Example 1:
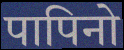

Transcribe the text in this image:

पापिनो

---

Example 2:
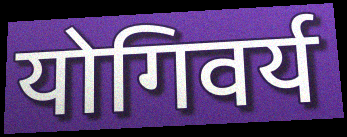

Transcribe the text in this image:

योगिवर्य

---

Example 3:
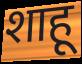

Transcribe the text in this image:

शाहू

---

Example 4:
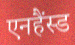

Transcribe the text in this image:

एनहैंस्ड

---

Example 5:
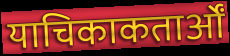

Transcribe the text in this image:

याचिकाकतार्ओं